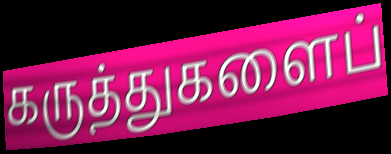
கருத்துகளைப்